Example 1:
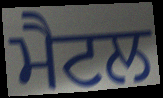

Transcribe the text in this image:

ਮੈਟਲ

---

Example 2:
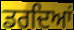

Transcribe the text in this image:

ਡਰਦਿਆਂ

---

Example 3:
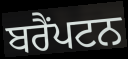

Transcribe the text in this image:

ਬਰੈੰਪਟਨ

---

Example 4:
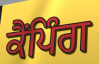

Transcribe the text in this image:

ਕੈਂਪਿੰਗ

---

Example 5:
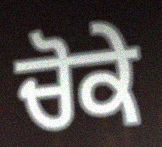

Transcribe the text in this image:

ਚੋਕੇ